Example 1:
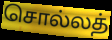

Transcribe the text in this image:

சொல்லத்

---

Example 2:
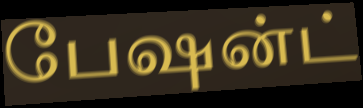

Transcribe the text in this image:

பேஷன்ட்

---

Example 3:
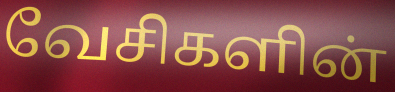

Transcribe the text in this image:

வேசிகளின்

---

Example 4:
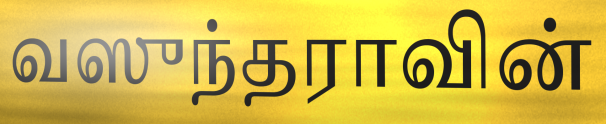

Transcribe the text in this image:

வஸுந்தராவின்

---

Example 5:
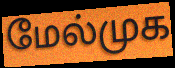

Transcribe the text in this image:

மேல்முக